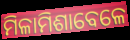
ମିଳାମିଶାବେଳେ